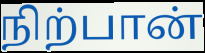
நிற்பான்